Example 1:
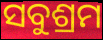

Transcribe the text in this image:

ସବୁଶ୍ରମ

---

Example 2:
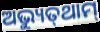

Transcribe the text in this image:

ଅଭ୍ୟୁତ୍‌ଥାମ୍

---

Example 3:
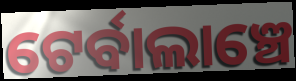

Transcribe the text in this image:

ଟେର୍ବାଲାଞ୍ଚେ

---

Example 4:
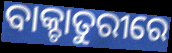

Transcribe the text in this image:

ବାକ୍ଚାତୁରୀରେ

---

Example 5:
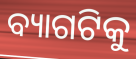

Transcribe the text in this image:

ବ୍ୟାଗଟିକୁ